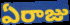
ఏరాజు